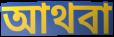
আথবা